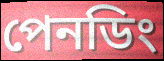
পেনডিং